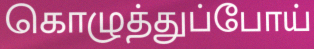
கொழுத்துப்போய்